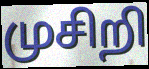
முசிறி